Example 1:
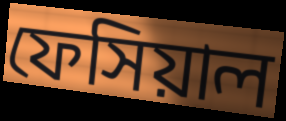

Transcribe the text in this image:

ফেসিয়াল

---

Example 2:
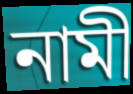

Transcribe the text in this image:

নামী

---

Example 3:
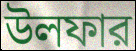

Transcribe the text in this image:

উলফার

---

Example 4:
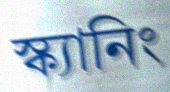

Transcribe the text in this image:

স্ক্যানিং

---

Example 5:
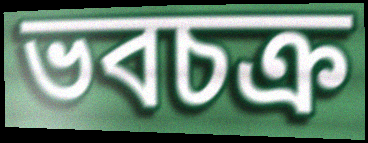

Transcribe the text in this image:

ভবচক্র